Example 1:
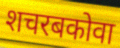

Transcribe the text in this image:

शचरबकोवा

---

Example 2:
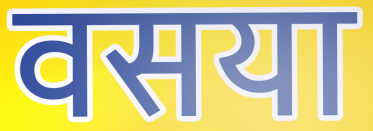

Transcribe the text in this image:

वसया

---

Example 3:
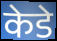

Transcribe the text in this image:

केडे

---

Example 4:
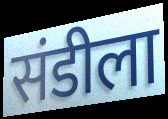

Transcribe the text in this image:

संडीला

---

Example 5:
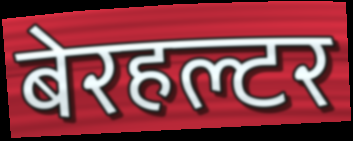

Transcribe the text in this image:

बेरहल्टर